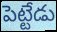
పెట్టేడు